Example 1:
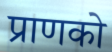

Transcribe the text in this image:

प्राणको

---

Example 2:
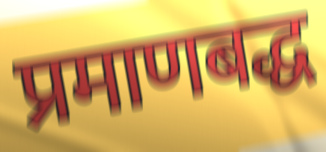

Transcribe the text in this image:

प्रमाणबद्ध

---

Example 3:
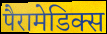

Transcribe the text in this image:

पैरामेडिक्स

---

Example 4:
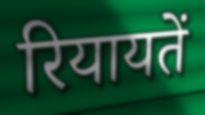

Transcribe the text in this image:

रियायतें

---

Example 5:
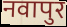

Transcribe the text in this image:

नवापुर